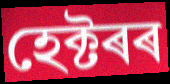
হেক্টৰৰ